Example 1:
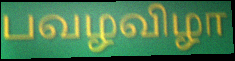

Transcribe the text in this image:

பவழவிழா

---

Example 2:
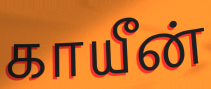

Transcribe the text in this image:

காயீன்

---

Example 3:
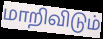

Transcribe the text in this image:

மாறிவிடும்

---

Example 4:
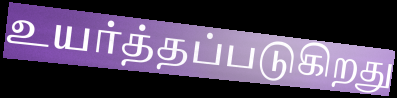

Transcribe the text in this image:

உயர்த்தப்படுகிறது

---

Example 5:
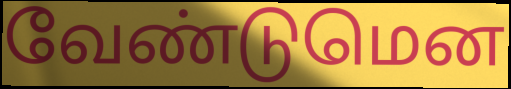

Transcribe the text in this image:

வேண்டுமென